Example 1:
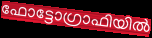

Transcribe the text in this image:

ഫോട്ടോഗ്രാഫിയിൽ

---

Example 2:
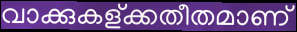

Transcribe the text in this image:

വാക്കുകള്ക്കതീതമാണ്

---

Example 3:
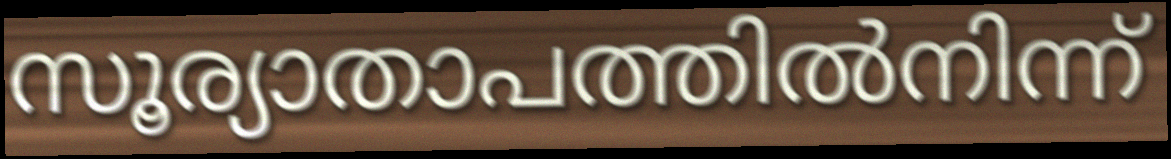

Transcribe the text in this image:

സൂര്യാതാപത്തിൽനിന്ന്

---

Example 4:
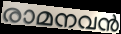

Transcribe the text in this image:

രാമനവൻ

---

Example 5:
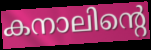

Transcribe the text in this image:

കനാലിന്റെ